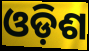
ଓଡ଼ିଶ